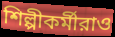
শিল্পীকর্মীরাও